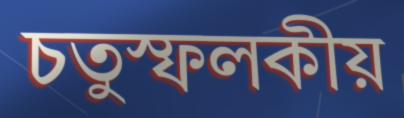
চতুস্ফলকীয়